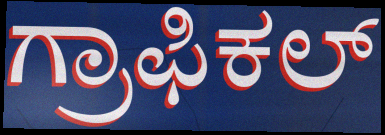
ಗ್ರಾಫಿಕಲ್